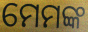
ମେମଙ୍କ